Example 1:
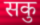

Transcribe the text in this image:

सकु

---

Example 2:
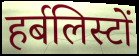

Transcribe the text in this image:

हर्बलिस्टों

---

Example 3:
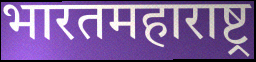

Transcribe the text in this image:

भारतमहाराष्ट्र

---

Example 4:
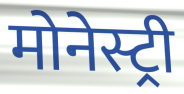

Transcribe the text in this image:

मोनेस्‍ट्री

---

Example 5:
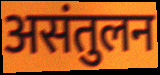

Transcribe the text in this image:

असंतुलन